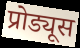
प्रोड्यूस